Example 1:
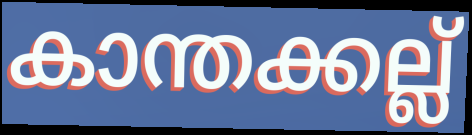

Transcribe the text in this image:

കാന്തക്കല്ല്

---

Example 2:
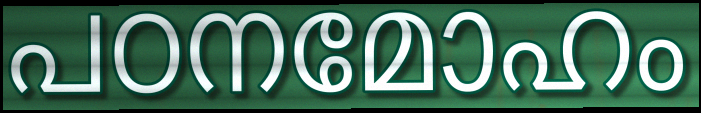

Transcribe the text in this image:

പഠനമോഹം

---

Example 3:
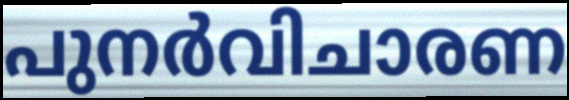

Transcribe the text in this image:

പുനർവിചാരണ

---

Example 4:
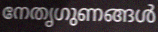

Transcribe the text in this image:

നേതൃഗുണങ്ങൾ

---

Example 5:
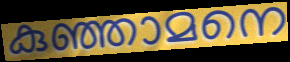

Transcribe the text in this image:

കുഞ്ഞാമനെ